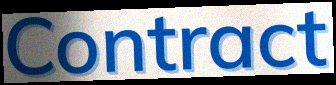
Contract